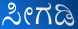
ಸೀಗಡಿ